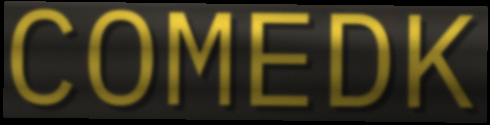
COMEDK